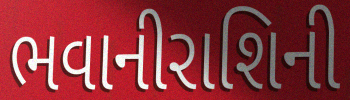
ભવાનીરાશિની